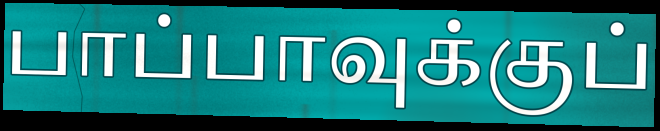
பாப்பாவுக்குப்